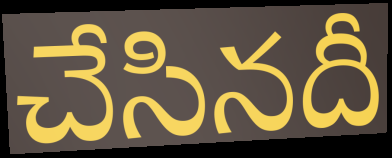
చేసినదీ